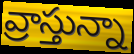
వ్రాస్తున్నా